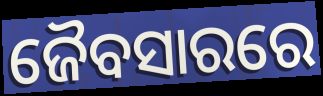
ଜୈବସାରରେ